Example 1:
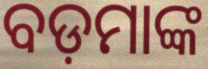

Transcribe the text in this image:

ବଡ଼ମାଙ୍କ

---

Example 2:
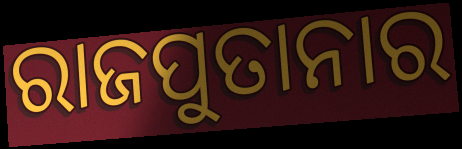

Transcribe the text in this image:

ରାଜପୁତାନାର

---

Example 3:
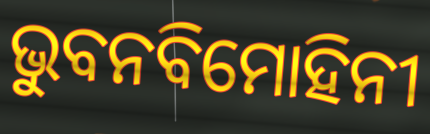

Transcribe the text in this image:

ଭୁବନବିମୋହିନୀ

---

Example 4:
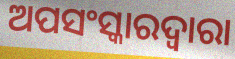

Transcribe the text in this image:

ଅପସଂସ୍କାରଦ୍ୱାରା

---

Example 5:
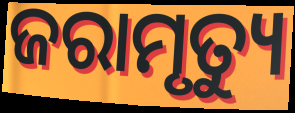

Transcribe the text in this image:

ଜରାମୃତ୍ୟୁ